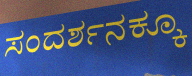
ಸಂದರ್ಶನಕ್ಕೂ